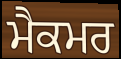
ਮੈਕਮਰ